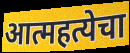
आत्महत्येचा